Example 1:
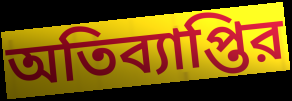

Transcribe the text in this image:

অতিব্যাপ্তির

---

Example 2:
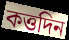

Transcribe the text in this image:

কত্তদিন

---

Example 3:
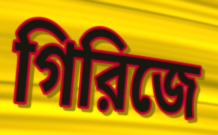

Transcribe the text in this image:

গিরিজে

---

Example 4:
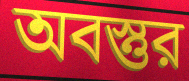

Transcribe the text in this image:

অবস্তুর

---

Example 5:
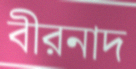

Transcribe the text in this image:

বীরনাদ